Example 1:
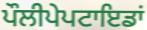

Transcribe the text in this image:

ਪੌਲੀਪੇਪਟਾਇਡਾਂ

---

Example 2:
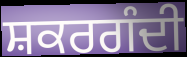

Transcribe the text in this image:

ਸ਼ਕਰਗੰਦੀ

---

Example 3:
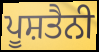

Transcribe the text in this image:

ਪੂਸ਼ਤੈਨੀ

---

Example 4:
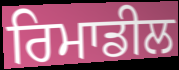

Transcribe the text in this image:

ਰਿਮਾਡੀਲ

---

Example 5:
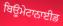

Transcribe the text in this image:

ਬਿਊਮੇਟਾਨਾਈਡ